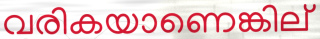
വരികയാണെങ്കില്